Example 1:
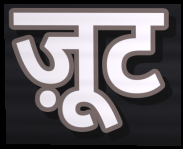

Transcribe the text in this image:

ज़ूट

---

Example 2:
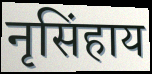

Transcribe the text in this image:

नृसिंहाय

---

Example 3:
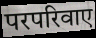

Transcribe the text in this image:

परपरिवाए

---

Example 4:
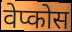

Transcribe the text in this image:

वेप्कोस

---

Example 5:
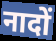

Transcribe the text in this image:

नादों